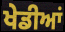
ਖੇਡੀਆਂ